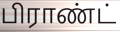
பிராண்ட்